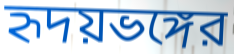
হৃদয়ভঙ্গের